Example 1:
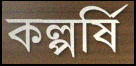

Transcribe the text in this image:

কল্পর্ষি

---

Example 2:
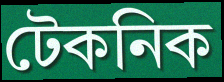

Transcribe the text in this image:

টেকনিক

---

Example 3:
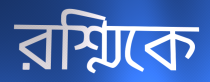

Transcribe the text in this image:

রশ্মিকে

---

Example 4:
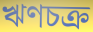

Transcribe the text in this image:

ঋণচক্র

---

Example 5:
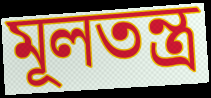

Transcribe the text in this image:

মূলতন্ত্র